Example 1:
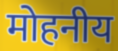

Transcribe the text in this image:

मोहनीय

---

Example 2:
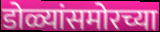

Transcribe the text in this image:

डोळ्यांसमोरच्या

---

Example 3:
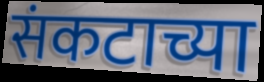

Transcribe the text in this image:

संकटाच्या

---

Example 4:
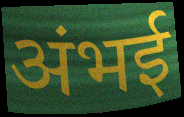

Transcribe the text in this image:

अंभई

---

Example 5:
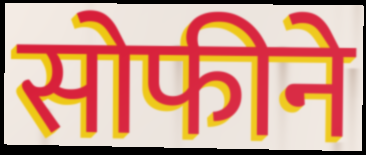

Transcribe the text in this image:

सोफीने